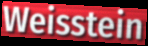
Weisstein